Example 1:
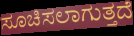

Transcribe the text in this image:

ಸೂಚಿಸಲಾಗುತ್ತದೆ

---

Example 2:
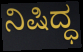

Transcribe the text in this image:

ನಿಷಿದ್ಧ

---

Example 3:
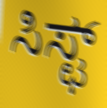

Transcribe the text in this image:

ಸಿಸ್ಟ್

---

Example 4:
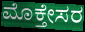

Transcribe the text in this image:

ಮೊಕ್ತೇಸರ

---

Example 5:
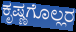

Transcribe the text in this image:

ಕೃಷ್ಣಗೊಲ್ಲರ